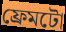
ফ্ৰেমটো